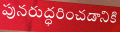
పునరుద్ధరించడానికి